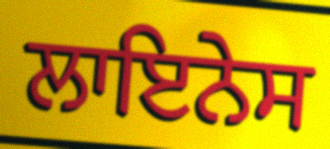
ਲਾਇਨੇਸ